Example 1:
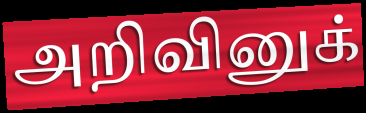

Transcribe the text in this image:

அறிவினுக்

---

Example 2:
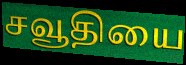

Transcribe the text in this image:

சவூதியை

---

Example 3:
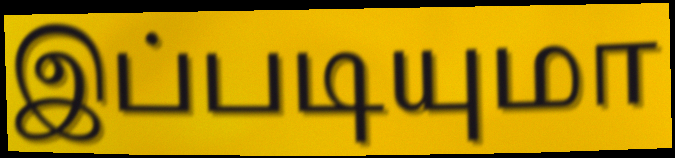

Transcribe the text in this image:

இப்படியுமா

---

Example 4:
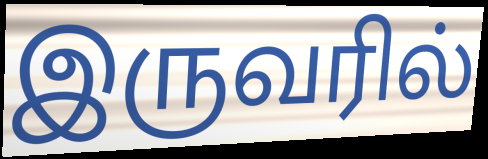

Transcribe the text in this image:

இருவரில்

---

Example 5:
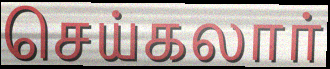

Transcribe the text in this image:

செய்கலார்